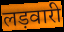
लड़वारी